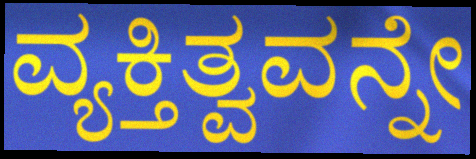
ವ್ಯಕ್ತಿತ್ವವನ್ನೇ